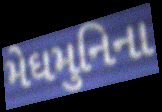
મેઘમુનિના